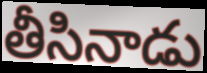
తీసినాడు